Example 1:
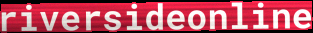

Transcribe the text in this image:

riversideonline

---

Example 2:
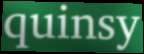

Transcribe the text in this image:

quinsy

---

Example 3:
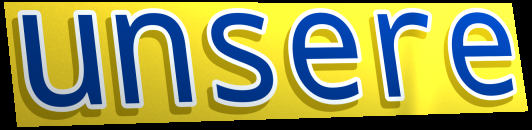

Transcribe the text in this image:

unsere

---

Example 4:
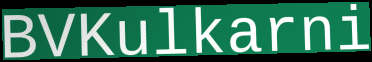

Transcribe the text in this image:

BVKulkarni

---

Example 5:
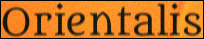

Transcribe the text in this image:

Orientalis